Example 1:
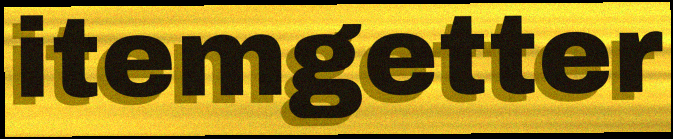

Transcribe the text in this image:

itemgetter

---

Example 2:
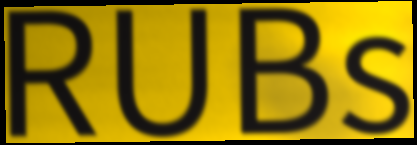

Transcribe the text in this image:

RUBs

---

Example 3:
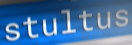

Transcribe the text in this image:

stultus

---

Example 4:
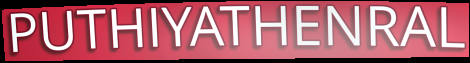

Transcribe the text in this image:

PUTHIYATHENRAL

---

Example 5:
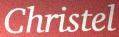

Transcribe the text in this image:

Christel